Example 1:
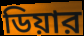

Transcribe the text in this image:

ডিয়ার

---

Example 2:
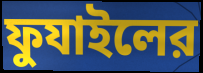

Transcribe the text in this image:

ফুযাইলের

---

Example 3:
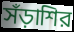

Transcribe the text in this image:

সঁড়াশির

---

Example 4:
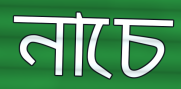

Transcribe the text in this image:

নাচে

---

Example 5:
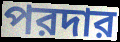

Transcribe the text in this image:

পরদার